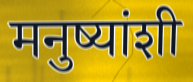
मनुष्यांशी